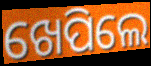
ଖେପିଲେ